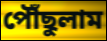
পৌঁছুলাম